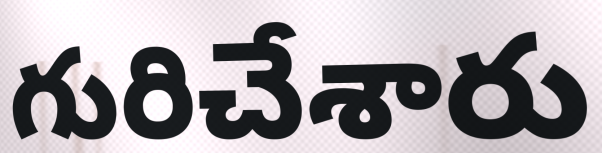
గురిచేశారు